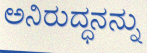
ಅನಿರುದ್ಧನನ್ನು